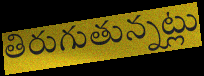
తిరుగుతున్నట్లు